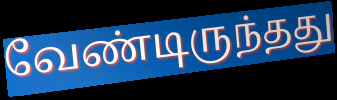
வேண்டிருந்தது